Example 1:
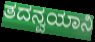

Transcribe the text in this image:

ತದನ್ವಯಾನಿ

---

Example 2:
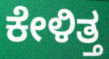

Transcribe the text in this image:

ಕೇಳಿತ್ತ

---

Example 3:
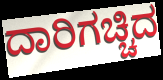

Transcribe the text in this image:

ದಾರಿಗಚ್ಚಿದ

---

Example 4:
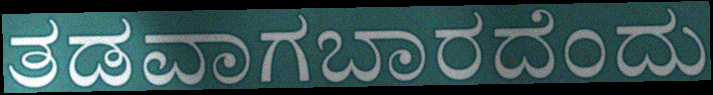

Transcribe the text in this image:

ತಡವಾಗಬಾರದೆಂದು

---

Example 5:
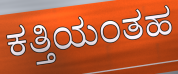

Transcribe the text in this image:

ಕತ್ತಿಯಂತಹ